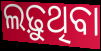
ଲଢ଼ୁଥିବା